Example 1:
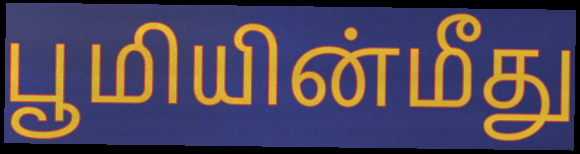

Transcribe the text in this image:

பூமியின்மீது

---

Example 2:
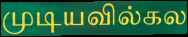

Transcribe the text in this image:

முடியவில்கல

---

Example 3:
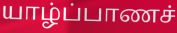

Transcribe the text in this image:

யாழ்ப்பாணச்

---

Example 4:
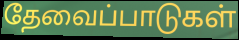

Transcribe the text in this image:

தேவைப்பாடுகள்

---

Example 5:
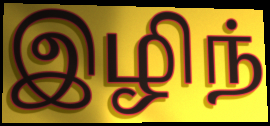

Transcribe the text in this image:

இழிந்